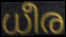
ധീര